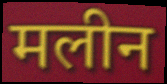
मलीन